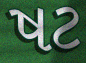
ષટ